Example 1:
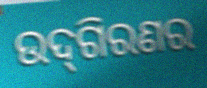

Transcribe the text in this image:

ଉଦ୍‌ଗିରଣର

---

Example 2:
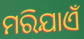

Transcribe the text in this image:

ମରିଯାଏଁ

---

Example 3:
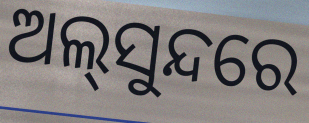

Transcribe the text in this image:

ଅଲ୍‌ସୁନ୍ଦରେ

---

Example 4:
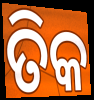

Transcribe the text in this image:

ତିକ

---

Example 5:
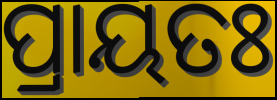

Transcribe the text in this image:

ପ୍ରାୟତଃ